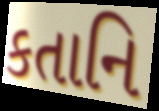
કતાનિ